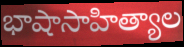
భాషాసాహిత్యాల